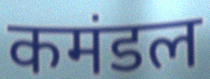
कमंडल